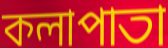
কলাপাতা